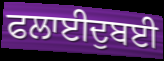
ਫਲਾਈਦੁਬਈ